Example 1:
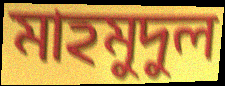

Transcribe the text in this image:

মাহমুদুল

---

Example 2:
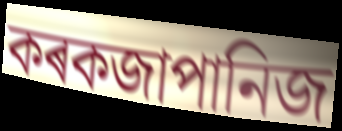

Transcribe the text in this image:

কৰকজাপানিজ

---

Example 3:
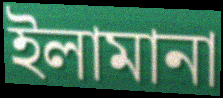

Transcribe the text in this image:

ইলামানা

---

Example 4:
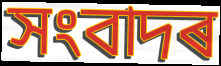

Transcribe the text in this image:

সংবাদৰ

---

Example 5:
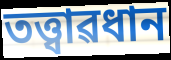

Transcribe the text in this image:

তত্ত্বাৱধান